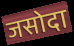
जसोदा